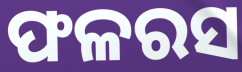
ଫଳରସ